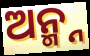
ଅନ୍ମ୍ନ